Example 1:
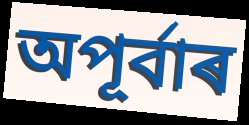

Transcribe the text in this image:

অপূৰ্বাৰ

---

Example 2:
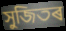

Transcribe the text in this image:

সুজিতৰ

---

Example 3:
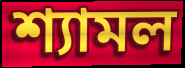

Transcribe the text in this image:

শ্যামল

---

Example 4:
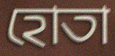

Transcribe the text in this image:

হোতা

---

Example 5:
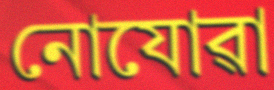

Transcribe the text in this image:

নোযোৱা